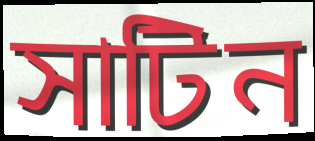
সাটিন